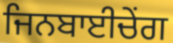
ਜਿਨਬਾਈਚੇਂਗ